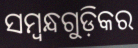
ସମ୍ବନ୍ଧଗୁଡ଼ିକର